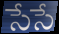
సేసే